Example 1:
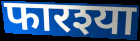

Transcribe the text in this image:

फारश्या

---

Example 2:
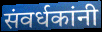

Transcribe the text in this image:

संवर्धकांनी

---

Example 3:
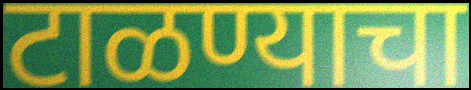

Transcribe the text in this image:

टाळण्याचा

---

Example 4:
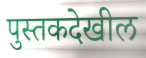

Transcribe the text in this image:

पुस्तकदेखील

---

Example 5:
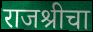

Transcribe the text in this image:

राजश्रीचा